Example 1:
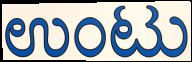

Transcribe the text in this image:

ಉಂಟು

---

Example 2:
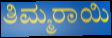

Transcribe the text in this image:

ತಿಮ್ಮರಾಯಿ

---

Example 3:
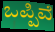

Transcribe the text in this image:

ಒಪ್ಪಿವೆ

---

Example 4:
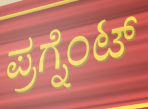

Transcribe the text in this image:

ಪ್ರಗ್ನೆಂಟ್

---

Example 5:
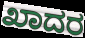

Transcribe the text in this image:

ಖಾದರ